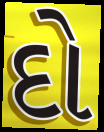
દો